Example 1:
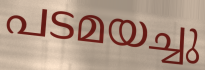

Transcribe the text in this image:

പടമയച്ചു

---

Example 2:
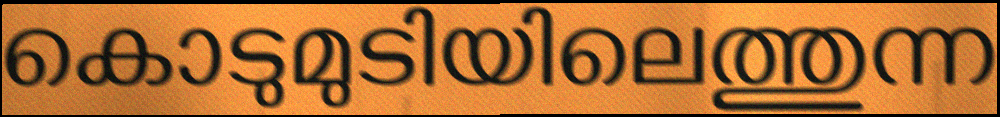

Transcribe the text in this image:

കൊടുമുടിയിലെത്തുന്ന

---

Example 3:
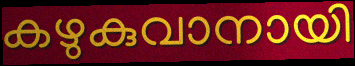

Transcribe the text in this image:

കഴുകുവാനായി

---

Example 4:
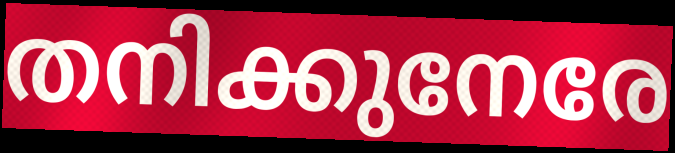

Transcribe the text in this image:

തനിക്കുനേരേ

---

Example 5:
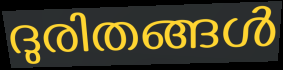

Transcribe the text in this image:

ദുരിതങ്ങൾ